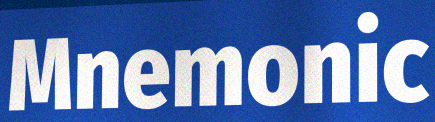
Mnemonic